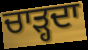
ਚਾੜ੍ਹਦਾ